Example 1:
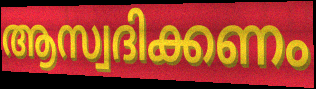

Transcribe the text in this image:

ആസ്വദിക്കണം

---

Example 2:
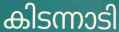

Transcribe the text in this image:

കിടന്നാടി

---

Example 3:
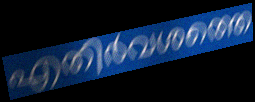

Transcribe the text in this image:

എതിർവശത്തെ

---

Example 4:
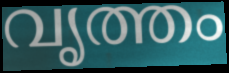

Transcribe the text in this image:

വൃത്തം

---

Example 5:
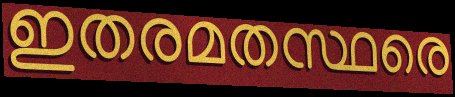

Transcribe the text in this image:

ഇതരമതസ്ഥരെ